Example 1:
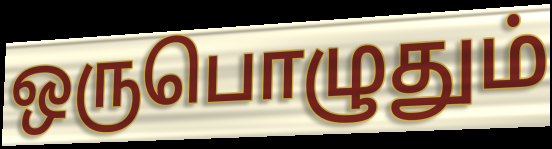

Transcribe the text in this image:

ஒருபொழுதும்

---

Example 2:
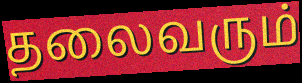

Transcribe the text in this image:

தலைவரும்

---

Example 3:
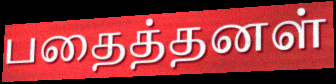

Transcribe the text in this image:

பதைத்தனள்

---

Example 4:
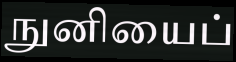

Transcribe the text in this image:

நுனியைப்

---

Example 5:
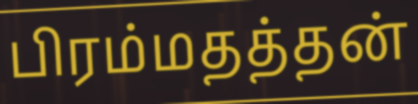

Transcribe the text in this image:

பிரம்மதத்தன்